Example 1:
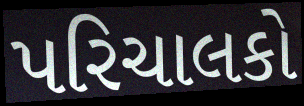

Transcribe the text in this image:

પરિચાલકો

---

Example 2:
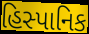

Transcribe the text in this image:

હિસ્પાનિક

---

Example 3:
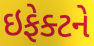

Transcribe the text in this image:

ઇફેક્ટને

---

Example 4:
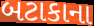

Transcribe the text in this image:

બટાકાના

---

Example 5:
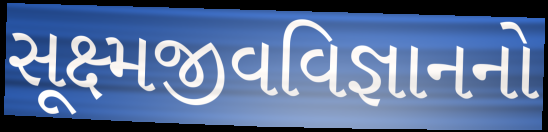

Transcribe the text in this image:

સૂક્ષ્મજીવવિજ્ઞાનનો